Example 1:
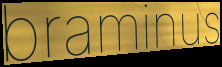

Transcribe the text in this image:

braminus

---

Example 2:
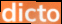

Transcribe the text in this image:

dicto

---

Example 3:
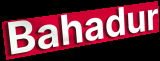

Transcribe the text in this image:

Bahadur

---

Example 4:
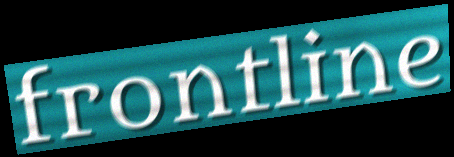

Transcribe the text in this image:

frontline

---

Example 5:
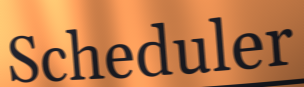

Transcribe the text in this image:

Scheduler